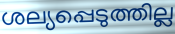
ശല്യപ്പെടുത്തില്ല